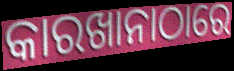
କାରଖାନାଠାରେ